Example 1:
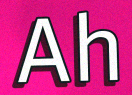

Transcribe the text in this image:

Ah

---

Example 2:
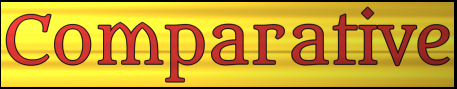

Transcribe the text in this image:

Comparative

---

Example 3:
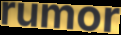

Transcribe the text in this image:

rumor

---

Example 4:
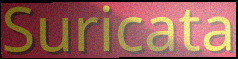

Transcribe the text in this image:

Suricata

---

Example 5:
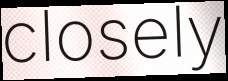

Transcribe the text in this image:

closely